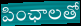
పింఛాలతో